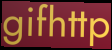
gifhttp